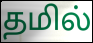
தமில்